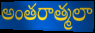
అంతరాత్మలా